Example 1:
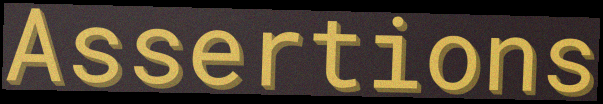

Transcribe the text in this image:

Assertions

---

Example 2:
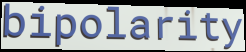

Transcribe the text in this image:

bipolarity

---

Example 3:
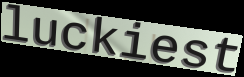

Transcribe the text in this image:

luckiest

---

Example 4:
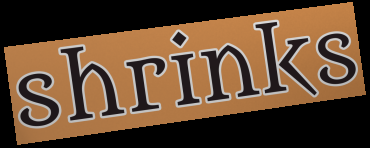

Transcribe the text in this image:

shrinks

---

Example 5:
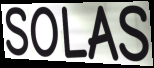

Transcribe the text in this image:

SOLAS